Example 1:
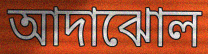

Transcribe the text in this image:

আদাঝোল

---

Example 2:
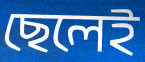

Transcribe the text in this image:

ছেলেই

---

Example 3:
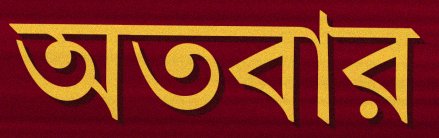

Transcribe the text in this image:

অতবার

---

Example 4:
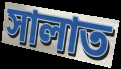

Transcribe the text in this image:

সালাত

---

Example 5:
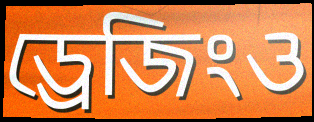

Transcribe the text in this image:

ড্রেজিংও